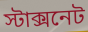
স্টাক্সনেট